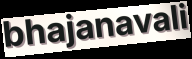
bhajanavali